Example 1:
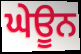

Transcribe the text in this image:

ਘੇਊਨ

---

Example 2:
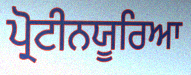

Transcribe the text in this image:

ਪ੍ਰੋਟੀਨਯੂਰਿਆ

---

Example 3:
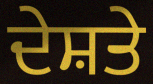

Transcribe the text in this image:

ਦੇਸ਼ਤੇ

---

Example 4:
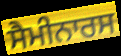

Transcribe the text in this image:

ਸੈਮੀਨਾਰਸ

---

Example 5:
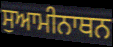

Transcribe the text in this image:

ਸੁਆਮੀਨਾਥਨ